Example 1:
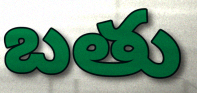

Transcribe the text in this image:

బతు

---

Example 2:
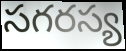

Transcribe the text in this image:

సగరస్య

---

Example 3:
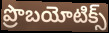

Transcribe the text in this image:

ప్రొబయోటిక్స్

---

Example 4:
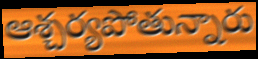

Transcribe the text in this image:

ఆశ్చర్యపోతున్నారు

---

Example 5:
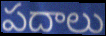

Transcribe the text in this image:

పదాలు